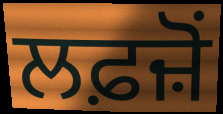
ਲਫ਼ਜ਼ੋਂ